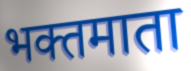
भक्तमाता